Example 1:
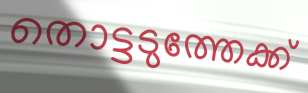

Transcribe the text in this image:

തൊട്ടടുത്തേക്ക്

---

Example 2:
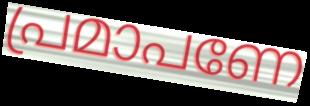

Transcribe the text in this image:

പ്രമാപണേ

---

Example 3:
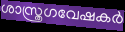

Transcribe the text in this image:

ശാസ്ത്രഗവേഷകർ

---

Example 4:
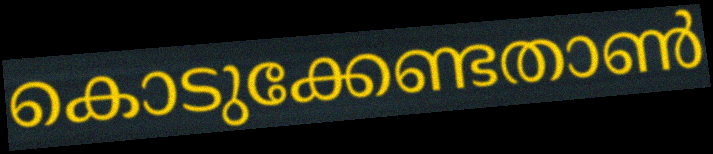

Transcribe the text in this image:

കൊടുക്കേണ്ടതാൺ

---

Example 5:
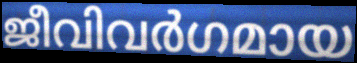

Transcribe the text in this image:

ജീവിവർഗമായ